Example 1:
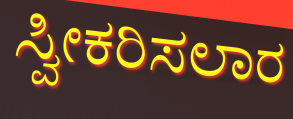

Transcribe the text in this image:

ಸ್ವೀಕರಿಸಲಾರ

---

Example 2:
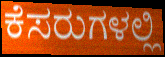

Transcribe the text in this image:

ಕೆಸರುಗಳಲ್ಲಿ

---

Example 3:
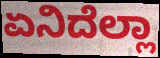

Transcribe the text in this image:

ಏನಿದೆಲ್ಲಾ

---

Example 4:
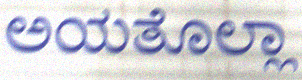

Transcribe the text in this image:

ಅಯತೊಲ್ಲಾ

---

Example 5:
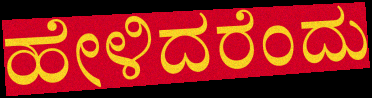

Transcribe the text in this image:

ಹೇಳಿದರೆಂದು